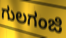
ಗುಲಗಂಜಿ